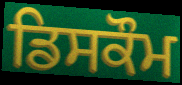
ਡਿਸਕੌਮ